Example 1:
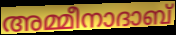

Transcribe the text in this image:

അമ്മീനാദാബ്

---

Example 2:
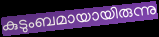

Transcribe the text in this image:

കുടുംബമായായിരുന്നു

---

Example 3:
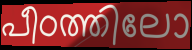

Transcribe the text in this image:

പീഠത്തിലോ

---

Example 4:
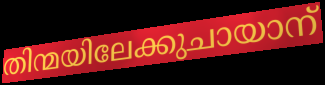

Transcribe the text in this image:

തിന്മയിലേക്കുചായാന്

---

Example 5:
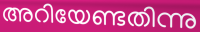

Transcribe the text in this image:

അറിയേണ്ടതിന്നു